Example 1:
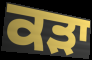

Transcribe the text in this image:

ਕੜਾ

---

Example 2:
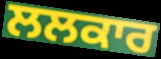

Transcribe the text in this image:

ਲਲਕਾਰ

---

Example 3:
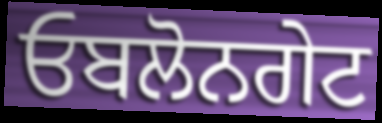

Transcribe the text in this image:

ਓਬਲੋਨਗੇਟ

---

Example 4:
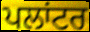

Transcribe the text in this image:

ਪਲਾਂਟਰ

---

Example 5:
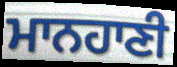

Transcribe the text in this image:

ਮਾਨਹਾਣੀ